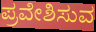
ಪ್ರವೇಶಿಸುವ